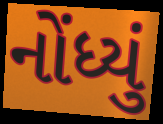
નોંધ્યું